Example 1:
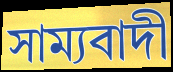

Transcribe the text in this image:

সাম্যবাদী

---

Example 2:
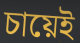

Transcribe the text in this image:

চায়েই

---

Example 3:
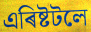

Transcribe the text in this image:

এৰিষ্টটলে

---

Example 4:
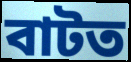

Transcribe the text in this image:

বাটত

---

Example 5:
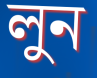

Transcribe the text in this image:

লুন